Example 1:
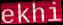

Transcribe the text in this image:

ekhi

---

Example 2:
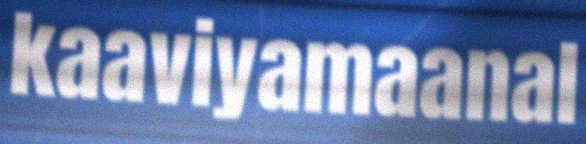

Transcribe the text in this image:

kaaviyamaanal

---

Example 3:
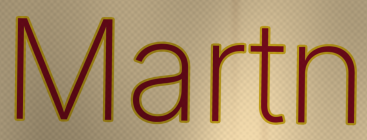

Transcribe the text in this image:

Martn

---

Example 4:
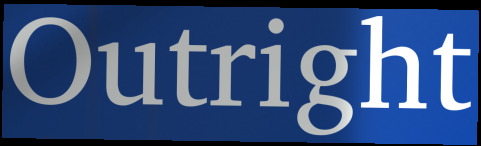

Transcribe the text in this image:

Outright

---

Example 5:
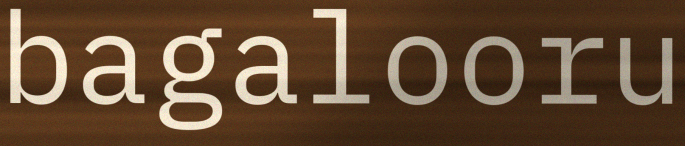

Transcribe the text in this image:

bagalooru